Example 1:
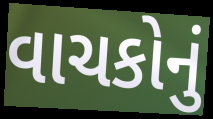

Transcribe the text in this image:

વાચકોનું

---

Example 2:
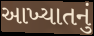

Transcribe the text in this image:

આખ્યાતનું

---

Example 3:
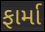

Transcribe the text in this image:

ફાર્મા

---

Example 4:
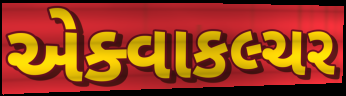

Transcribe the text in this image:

એક્વાકલ્ચર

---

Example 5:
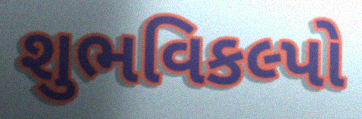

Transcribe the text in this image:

શુભવિકલ્પો